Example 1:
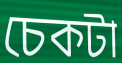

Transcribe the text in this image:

চেকটা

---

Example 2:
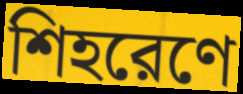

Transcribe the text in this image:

শিহরেণে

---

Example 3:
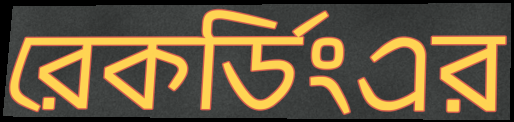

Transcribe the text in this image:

রেকর্ডিংএর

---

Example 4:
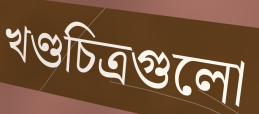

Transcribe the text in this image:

খণ্ডচিত্রগুলো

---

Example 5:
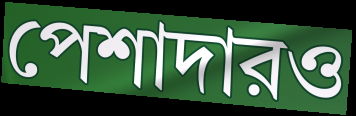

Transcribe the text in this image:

পেশাদারও